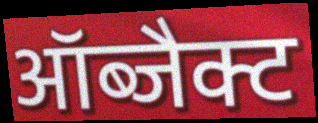
ऑब्जैक्ट